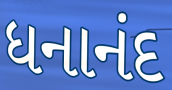
ધનાનંદ